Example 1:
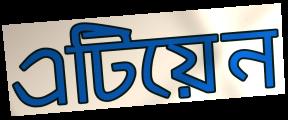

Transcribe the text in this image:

এটিয়েন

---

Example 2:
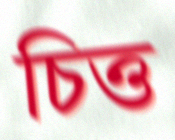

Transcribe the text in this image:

চিত্ত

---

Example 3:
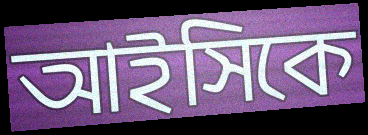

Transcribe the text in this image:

আইসিকে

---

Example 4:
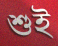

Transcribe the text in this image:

শুই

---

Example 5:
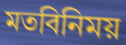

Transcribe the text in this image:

মতবিনিময়